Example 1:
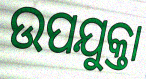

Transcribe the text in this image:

ଉପଯୁକ୍ତା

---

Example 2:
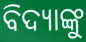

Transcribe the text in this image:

ବିଦ୍ୟାଙ୍କୁ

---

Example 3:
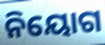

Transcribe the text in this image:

ନିୟୋଗ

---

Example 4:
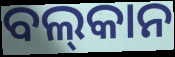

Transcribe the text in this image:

ବଲ୍‌କାନ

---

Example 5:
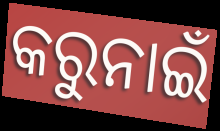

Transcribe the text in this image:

କରୁନାଇଁ